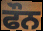
ਫੌਨ